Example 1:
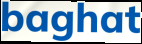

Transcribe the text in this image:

baghat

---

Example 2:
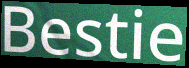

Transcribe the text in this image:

Bestie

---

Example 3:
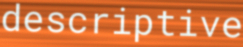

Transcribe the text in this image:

descriptive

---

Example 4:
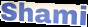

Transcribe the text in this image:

Shami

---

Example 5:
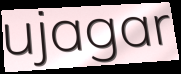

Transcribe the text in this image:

ujagar